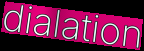
dialation